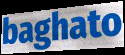
baghato